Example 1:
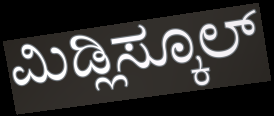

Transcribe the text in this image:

ಮಿಡ್ಲಿಸ್ಕೂಲ್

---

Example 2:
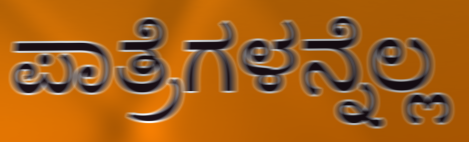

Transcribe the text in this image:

ಪಾತ್ರೆಗಳನ್ನೆಲ್ಲ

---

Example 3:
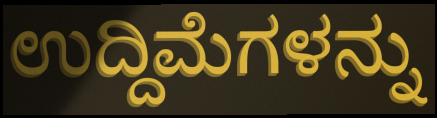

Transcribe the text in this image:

ಉದ್ದಿಮೆಗಳನ್ನು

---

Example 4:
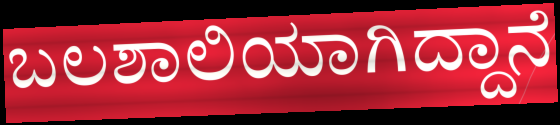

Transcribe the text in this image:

ಬಲಶಾಲಿಯಾಗಿದ್ದಾನೆ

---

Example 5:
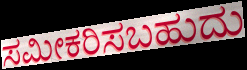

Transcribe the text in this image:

ಸಮೀಕರಿಸಬಹುದು